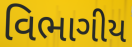
વિભાગીય